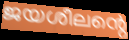
ജയശീലന്റെ